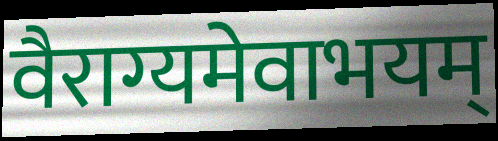
वैराग्यमेवाभयम्